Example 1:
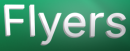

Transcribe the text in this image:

Flyers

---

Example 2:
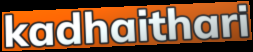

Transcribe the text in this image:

kadhaithari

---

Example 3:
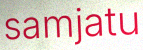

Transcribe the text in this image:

samjatu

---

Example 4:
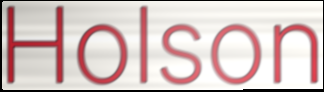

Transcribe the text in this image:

Holson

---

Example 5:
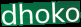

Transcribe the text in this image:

dhoko